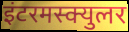
इंटरमस्क्युलर